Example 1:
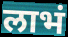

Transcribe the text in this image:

लाभं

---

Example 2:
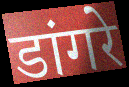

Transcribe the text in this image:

डांगरे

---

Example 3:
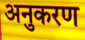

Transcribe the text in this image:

अनुकरण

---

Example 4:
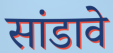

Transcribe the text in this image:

सांडावे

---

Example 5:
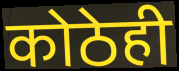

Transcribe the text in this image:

कोठेही